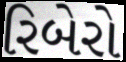
રિબેરો